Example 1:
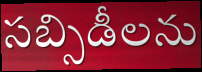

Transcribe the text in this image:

సబ్సిడీలను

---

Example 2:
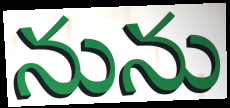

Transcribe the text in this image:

నును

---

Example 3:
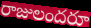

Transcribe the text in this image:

రాజులందరూ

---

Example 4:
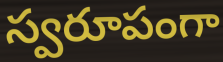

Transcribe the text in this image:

స్వరూపంగా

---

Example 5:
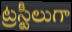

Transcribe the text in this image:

ట్రస్టీలుగా